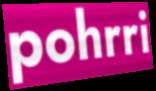
pohrri